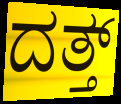
ದತ್ತ್